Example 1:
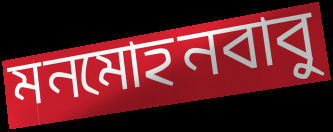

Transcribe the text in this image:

মনমোহনবাবু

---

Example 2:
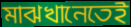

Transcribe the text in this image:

মাঝখানেতেই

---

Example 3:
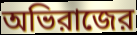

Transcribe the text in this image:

অভিরাজের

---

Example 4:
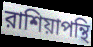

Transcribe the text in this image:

রাশিয়াপন্থি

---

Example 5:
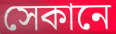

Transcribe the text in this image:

সেকানে